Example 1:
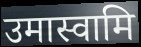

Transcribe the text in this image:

उमास्वामि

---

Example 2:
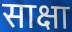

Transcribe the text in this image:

साक्षा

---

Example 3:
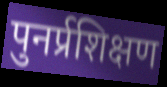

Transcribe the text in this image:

पुनर्प्रशिक्षण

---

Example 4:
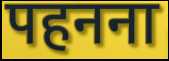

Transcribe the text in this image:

पहनना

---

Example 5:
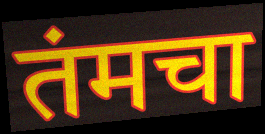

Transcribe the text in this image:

तंमचा